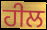
ਹੀਲ